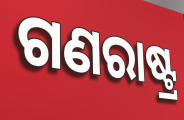
ଗଣରାଷ୍ଟ୍ର